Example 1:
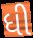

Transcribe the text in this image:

ધી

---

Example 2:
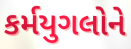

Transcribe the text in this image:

કર્મયુગલોને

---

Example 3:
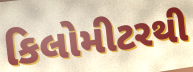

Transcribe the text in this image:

કિલોમીટરથી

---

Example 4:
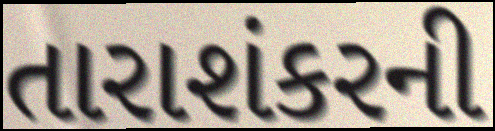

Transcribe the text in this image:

તારાશંકરની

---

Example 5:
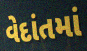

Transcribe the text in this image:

વેદાંતમાં